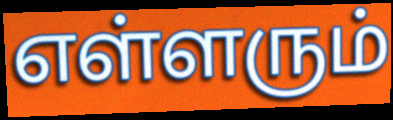
எள்ளரும்